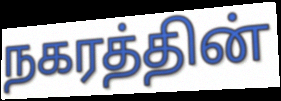
நகரத்தின்